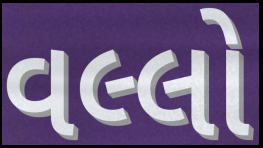
વલ્લો